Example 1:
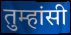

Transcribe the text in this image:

तुम्हांसी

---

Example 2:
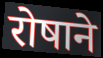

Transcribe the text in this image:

रोषाने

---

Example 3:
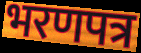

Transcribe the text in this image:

भरणपत्र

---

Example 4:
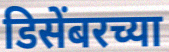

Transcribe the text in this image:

डिसेंबरच्या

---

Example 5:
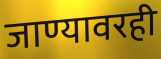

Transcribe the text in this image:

जाण्यावरही